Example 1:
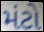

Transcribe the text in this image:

મંટો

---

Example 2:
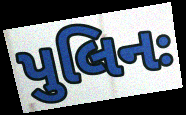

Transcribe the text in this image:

પુલિનઃ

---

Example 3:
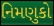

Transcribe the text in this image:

નિમણુકો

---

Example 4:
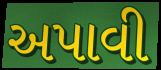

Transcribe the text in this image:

અપાવી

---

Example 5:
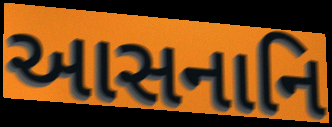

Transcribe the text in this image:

આસનાનિ